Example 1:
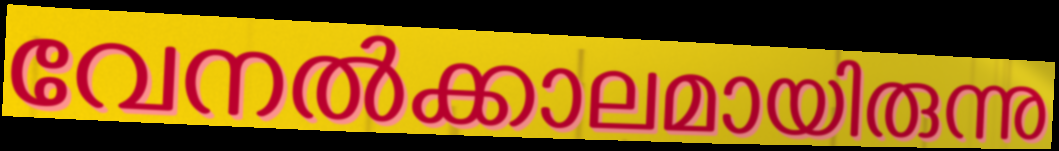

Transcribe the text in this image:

വേനൽക്കാലമായിരുന്നു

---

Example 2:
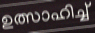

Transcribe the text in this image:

ഉത്സാഹിച്ച്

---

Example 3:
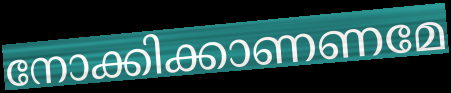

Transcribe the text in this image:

നോക്കിക്കാണണമേ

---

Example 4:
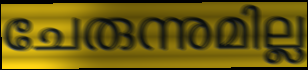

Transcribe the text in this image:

ചേരുന്നുമില്ല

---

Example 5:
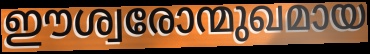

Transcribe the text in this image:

ഈശ്വരോന്മുഖമായ